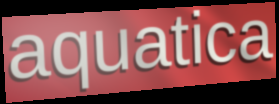
aquatica